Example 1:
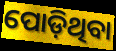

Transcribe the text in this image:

ପୋଡ଼ିଥିବା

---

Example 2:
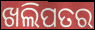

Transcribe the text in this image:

ଖଲିପତର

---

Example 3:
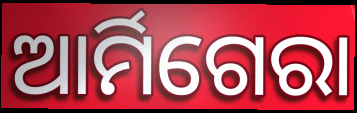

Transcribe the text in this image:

ଆର୍ମିଗେରା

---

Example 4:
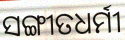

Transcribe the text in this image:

ସଙ୍ଗୀତଧର୍ମୀ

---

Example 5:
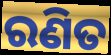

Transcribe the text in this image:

ରଣିତ